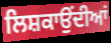
ਲਿਸ਼ਕਾਉਂਦੀਆਂ